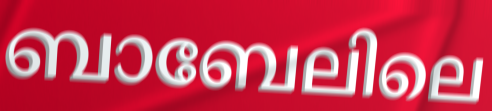
ബാബേലിലെ